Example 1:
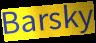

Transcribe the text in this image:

Barsky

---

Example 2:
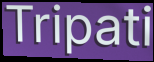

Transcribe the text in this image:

Tripati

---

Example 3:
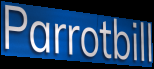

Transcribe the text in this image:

Parrotbill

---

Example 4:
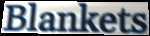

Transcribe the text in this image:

Blankets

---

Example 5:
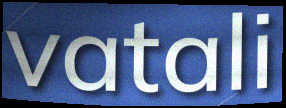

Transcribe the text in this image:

vatali